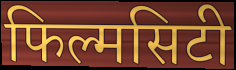
फिल्मसिटी